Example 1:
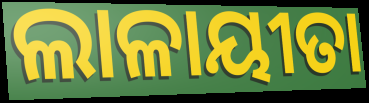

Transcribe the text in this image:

ଲାଳାୟୀତା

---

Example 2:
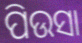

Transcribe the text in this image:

ପିଉସା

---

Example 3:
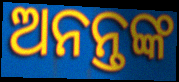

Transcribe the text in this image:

ଅନନ୍ତଙ୍କ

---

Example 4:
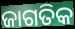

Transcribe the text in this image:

ଜାଗତିକ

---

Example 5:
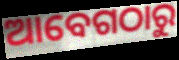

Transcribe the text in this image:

ଆବେଗଠାରୁ